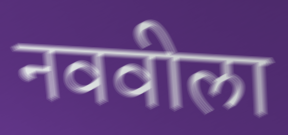
नववीला